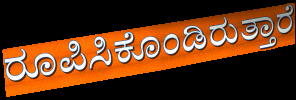
ರೂಪಿಸಿಕೊಂಡಿರುತ್ತಾರೆ